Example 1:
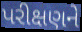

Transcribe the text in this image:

પરીક્ષણને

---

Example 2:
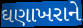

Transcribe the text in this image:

ઘણાખરાને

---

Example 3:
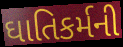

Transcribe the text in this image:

ઘાતિકર્મની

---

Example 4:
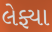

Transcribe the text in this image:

લેફ્યા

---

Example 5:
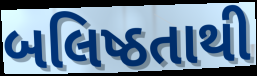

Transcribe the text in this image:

બલિષ્ઠતાથી